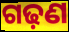
ଗଢ଼ଣ